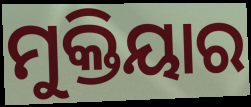
ମୁକ୍ତିୟାର